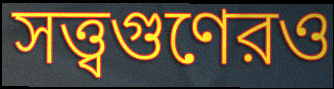
সত্ত্বগুণেরও